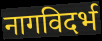
नागविदर्भ